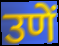
उणें